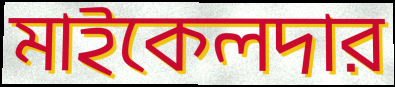
মাইকেলদার